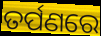
ତର୍ପଣରେ